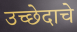
उच्छेदाचे